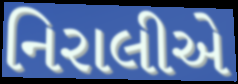
નિરાલીએ